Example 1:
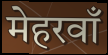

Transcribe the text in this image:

मेहरवाँ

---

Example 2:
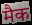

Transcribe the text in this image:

मैक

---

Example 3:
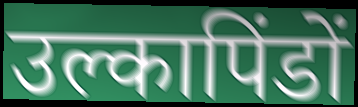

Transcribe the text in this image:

उल्कापिंडों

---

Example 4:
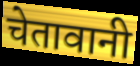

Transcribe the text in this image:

चेतावानी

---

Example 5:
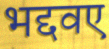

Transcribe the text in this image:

भद्दवए